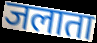
जलाता